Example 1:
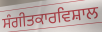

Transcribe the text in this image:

ਸੰਗੀਤਕਾਰਵਿਸ਼ਾਲ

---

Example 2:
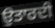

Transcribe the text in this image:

ਉਤਾਰਦੀ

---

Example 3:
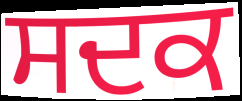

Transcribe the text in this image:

ਸਦਕ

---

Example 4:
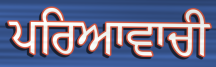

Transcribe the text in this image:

ਪਰਿਆਵਾਚੀ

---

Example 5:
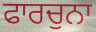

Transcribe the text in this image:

ਫਾਰਚੁਨਾ